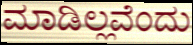
ಮಾಡಿಲ್ಲವೆಂದು